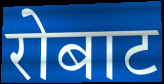
रोबाट